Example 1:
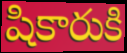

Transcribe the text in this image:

షికారుకి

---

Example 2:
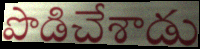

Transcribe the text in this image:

పొడిచేశాడు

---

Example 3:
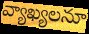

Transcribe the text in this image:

వ్యాఖ్యలనూ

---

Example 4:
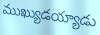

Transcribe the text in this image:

ముఖ్యుడయ్యాడు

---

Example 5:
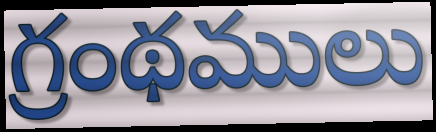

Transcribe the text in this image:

గ్రంథములు